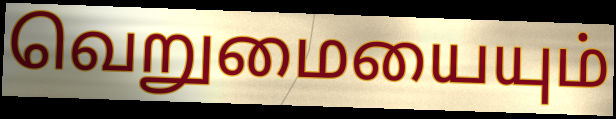
வெறுமையையும்